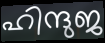
ഹിന്ദുജ